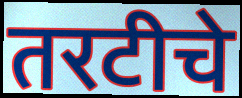
तरटीचे